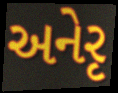
અનેરૃ